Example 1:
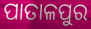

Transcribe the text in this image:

ପାତାଳପୁର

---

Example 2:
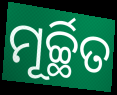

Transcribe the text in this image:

ମୂର୍ଚ୍ଛିତ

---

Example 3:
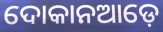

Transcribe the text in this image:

ଦୋକାନଆଡ଼େ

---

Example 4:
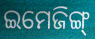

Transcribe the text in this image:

ଇମେଜିଙ୍ଗ୍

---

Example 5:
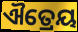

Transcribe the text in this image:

ଐତ୍ରେୟ